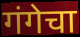
गंगेचा